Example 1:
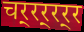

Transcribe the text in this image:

चर्रर्रर्र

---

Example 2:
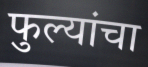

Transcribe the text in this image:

फुल्यांचा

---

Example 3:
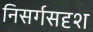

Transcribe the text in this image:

निसर्गसदृश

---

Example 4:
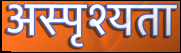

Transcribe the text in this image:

अस्पृश्यता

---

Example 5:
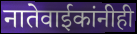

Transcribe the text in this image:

नातेवाईकांनीही